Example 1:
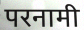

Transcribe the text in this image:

परनामी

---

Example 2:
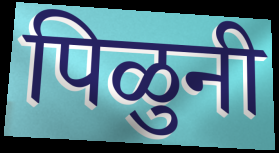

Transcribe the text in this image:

पिळुनी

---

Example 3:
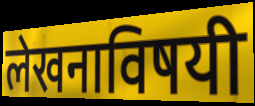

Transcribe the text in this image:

लेखनाविषयी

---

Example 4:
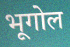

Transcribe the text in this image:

भूगोल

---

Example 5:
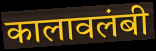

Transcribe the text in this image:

कालावलंबी